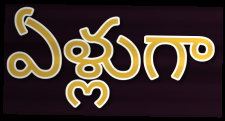
ఏళ్లుగా